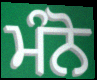
ਮੰਨੋ